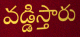
వడ్డిస్తారు